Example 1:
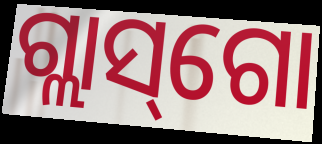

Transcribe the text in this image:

ଗ୍ଲାସ୍‌ଗୋ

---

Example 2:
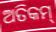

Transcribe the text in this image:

ଅତିକମ୍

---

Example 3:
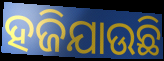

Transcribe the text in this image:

ହଜିଯାଉଛି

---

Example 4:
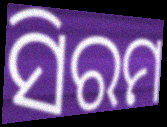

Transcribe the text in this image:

ସିରମ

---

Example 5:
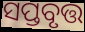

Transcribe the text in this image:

ସପ୍ତବୃତ୍ତ